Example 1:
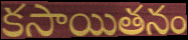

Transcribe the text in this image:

కసాయితనం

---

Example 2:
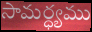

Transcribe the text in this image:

సామర్ధ్యము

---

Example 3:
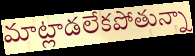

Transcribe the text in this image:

మాట్లాడలేకపోతున్నా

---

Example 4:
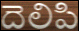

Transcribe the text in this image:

దెలిపి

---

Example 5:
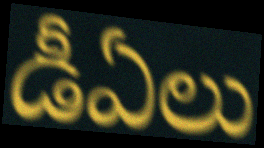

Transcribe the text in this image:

డీఏలు